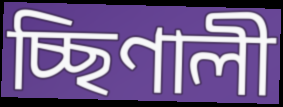
চ্ছিণালী